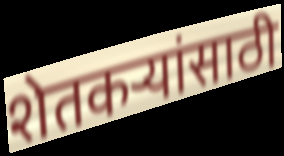
शेतकर्‍यांसाठी